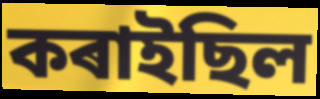
কৰাইছিল